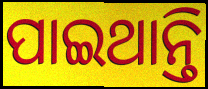
ପାଇଥାନ୍ତି